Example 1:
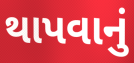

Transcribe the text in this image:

થાપવાનું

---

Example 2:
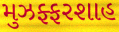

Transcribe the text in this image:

મુઝફ્ફરશાહ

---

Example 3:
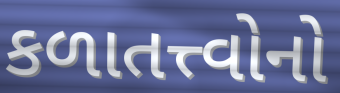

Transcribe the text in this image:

કળાતત્ત્વોનો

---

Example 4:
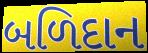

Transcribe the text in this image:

બળિદાન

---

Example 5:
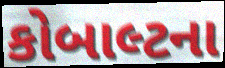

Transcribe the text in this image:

કોબાલ્ટના